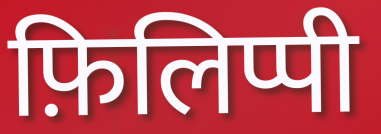
फ़िलिप्पी